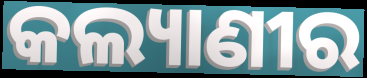
କଲ୍ୟାଣୀର